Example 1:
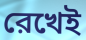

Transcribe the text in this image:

রেখেই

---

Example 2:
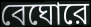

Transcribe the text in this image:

বেঘোরে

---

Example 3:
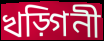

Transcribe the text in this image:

খড়্গিনী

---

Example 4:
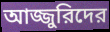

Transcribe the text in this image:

আজ্জুরিদের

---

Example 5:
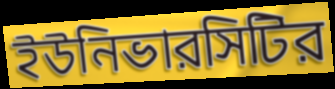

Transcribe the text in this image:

ইউনিভারসিটির